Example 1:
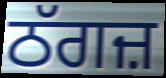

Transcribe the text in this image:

ਠੱਗਜ਼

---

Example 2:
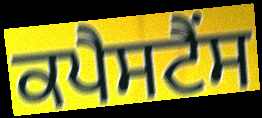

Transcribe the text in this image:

ਕਪੈਸਟੈਂਸ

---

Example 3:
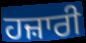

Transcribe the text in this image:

ਹਜ਼ਾਰੀ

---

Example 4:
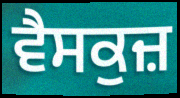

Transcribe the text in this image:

ਵੈਸਕੁਜ਼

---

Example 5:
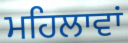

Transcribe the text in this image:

ਮਹਿਲਾਵਾਂ